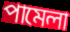
পামেলা